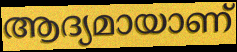
ആദ്യമായാണ്